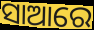
ସାଆରେ